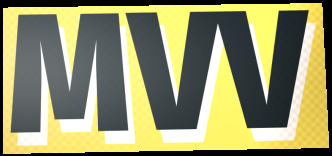
MVV